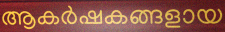
ആകർഷകങ്ങളായ